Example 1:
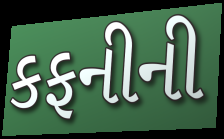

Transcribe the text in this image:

કફનીની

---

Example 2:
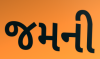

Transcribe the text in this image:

જમની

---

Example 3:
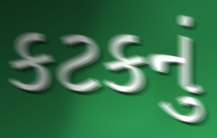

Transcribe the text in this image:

કટકનું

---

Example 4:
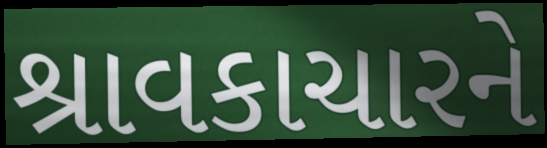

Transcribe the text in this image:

શ્રાવકાચારને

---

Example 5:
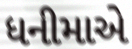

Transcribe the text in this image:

ધનીમાએ